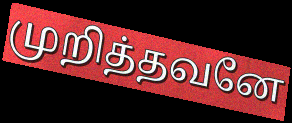
முறித்தவனே